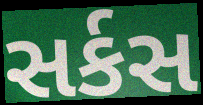
સર્કસ